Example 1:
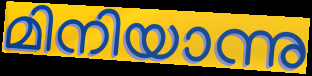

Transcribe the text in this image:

മിനിയാന്നു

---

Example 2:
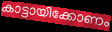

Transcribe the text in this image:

കാട്ടായിക്കോണം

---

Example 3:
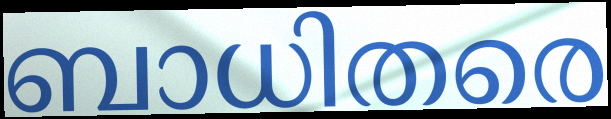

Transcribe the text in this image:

ബാധിതരെ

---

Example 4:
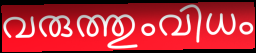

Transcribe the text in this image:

വരുത്തുംവിധം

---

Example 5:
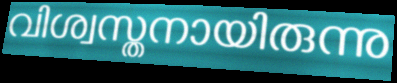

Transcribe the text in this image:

വിശ്വസ്തനായിരുന്നു